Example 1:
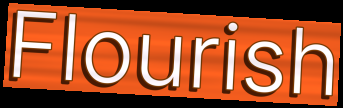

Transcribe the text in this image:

Flourish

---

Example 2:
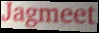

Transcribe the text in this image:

Jagmeet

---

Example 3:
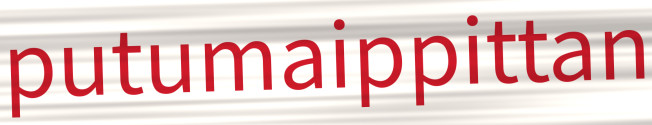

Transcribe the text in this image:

putumaippittan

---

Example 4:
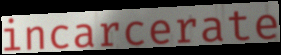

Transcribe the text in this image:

incarcerate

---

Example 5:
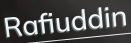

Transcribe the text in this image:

Rafiuddin